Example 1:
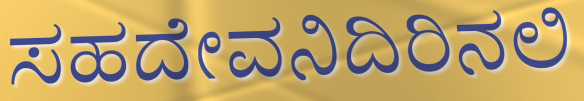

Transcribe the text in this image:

ಸಹದೇವನಿದಿರಿನಲಿ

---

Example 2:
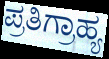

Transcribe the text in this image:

ಪ್ರತಿಗ್ರಾಹ್ಯ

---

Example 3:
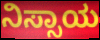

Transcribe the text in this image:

ನಿಸ್ಸಾಯ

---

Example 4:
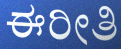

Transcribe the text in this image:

ಈರೀತಿ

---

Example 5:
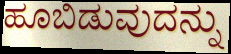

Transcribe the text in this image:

ಹೂಬಿಡುವುದನ್ನು